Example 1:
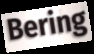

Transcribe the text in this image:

Bering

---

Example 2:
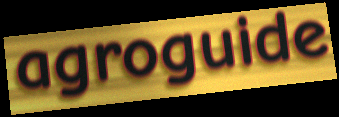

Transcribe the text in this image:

agroguide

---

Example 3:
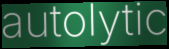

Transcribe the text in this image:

autolytic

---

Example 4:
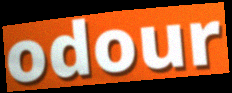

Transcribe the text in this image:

odour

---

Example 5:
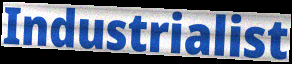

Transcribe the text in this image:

Industrialist